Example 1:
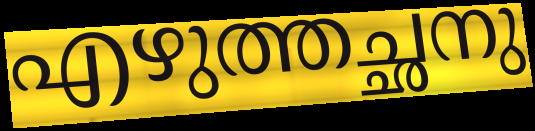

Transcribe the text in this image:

എഴുത്തച്ഛനു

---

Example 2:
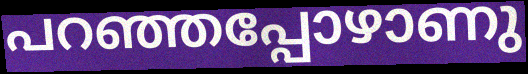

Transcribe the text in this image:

പറഞ്ഞപ്പോഴാണു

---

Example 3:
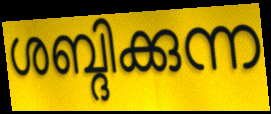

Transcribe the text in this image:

ശബ്ദിക്കുന്ന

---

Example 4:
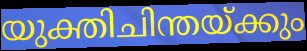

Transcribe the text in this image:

യുക്തിചിന്തയ്ക്കും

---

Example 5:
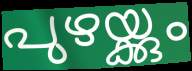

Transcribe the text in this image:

പുഴയ്ക്കും